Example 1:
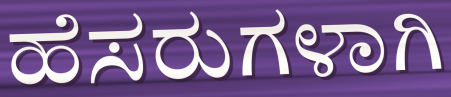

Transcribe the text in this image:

ಹೆಸರುಗಳಾಗಿ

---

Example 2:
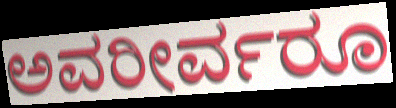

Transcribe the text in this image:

ಅವರೀರ್ವರೂ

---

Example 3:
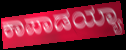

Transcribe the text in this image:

ಕಾಪಾಡಯ್ಯಾ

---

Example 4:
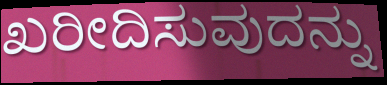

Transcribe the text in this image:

ಖರೀದಿಸುವುದನ್ನು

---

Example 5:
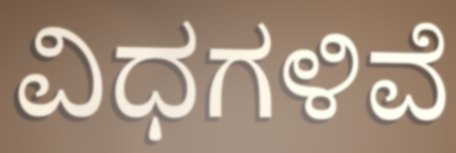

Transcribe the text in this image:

ವಿಧಗಳಿವೆ